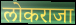
लोकराजा